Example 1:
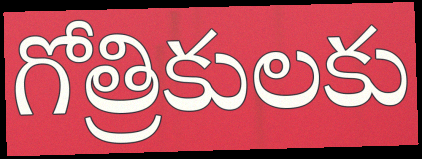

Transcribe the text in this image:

గోత్రికులకు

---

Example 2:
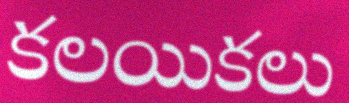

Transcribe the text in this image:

కలయికలు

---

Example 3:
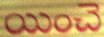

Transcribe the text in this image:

యించె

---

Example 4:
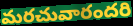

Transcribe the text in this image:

మరచువారందరి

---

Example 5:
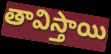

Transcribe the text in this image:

తావిస్తాయి